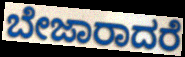
ಬೇಜಾರಾದರೆ